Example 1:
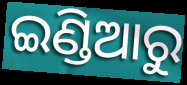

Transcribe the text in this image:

ଇଣ୍ଡିଆରୁ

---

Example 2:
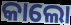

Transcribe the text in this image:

କାଲୋ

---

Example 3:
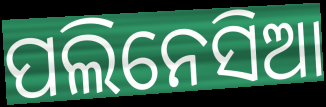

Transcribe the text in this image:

ପଲିନେସିଆ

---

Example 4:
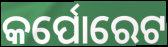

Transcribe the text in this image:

କର୍ପୋରେଟ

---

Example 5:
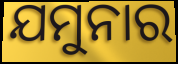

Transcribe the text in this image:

ଯମୁନାର